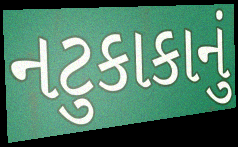
નટુકાકાનું